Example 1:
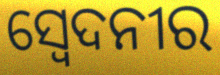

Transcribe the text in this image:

ସ୍ୱେଦନୀର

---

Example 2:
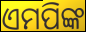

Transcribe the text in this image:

ଏମପିଙ୍କ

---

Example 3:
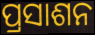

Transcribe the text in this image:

ପ୍ରସାଶନ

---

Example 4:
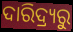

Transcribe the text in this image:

ଦାରିଦ୍ର୍ୟରୁ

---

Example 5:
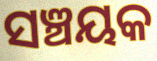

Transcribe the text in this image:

ସଞ୍ଚୟକ